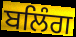
ਬਲਿੰਗ